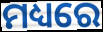
ମଧ୍ୟରେ